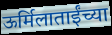
ऊर्मिलाताईंच्या